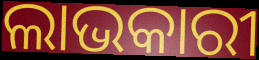
ଲାଭକାରୀ